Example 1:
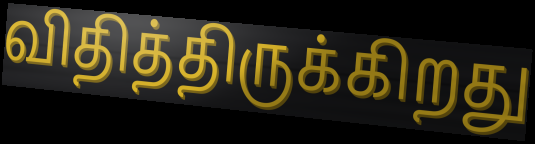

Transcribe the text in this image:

விதித்திருக்கிறது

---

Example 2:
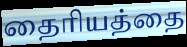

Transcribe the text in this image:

தைரியத்தை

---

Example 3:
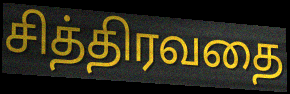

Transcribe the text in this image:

சித்திரவதை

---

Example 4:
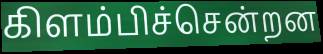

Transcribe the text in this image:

கிளம்பிச்சென்றன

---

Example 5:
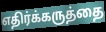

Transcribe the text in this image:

எதிர்க்கருத்தை